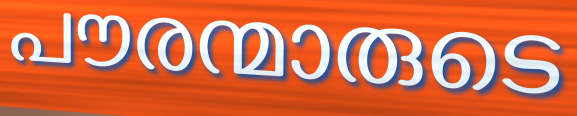
പൗരന്മാരുടെ